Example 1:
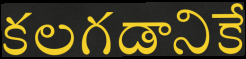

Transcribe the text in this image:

కలగడానికే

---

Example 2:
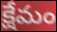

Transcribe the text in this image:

క్షేమం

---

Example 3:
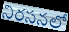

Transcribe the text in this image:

నిరసనలో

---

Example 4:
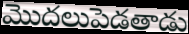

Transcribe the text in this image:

మొదలుపెడతాడు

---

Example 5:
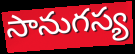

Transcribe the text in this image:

సానుగస్య